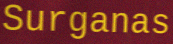
Surganas